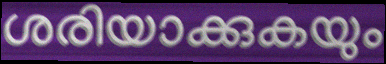
ശരിയാക്കുകയും